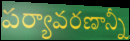
పర్యావరణాన్నీ